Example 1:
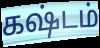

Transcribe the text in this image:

கஷ்டம்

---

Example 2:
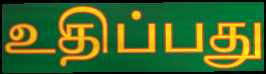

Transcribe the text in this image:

உதிப்பது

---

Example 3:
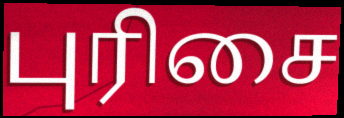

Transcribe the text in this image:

புரிசை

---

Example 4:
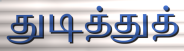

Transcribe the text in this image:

துடித்துத்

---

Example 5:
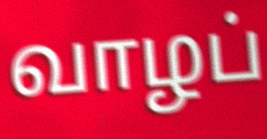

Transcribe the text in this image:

வாழப்